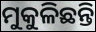
ମୁକୁଳିଛନ୍ତି